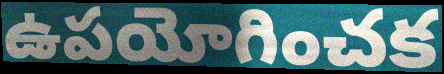
ఉపయోగించక